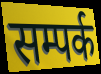
सम्पर्क